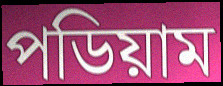
পডিয়াম